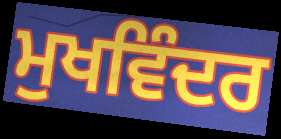
ਮੁਖਵਿੰਦਰ